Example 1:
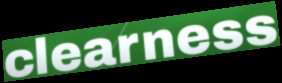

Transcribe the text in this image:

clearness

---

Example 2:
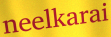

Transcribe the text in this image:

neelkarai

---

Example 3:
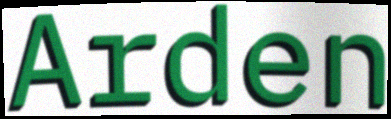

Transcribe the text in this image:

Arden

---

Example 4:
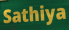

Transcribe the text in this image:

Sathiya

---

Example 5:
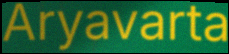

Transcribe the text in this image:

Aryavarta